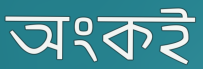
অংকই